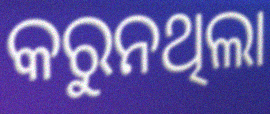
କରୁନଥିଲା